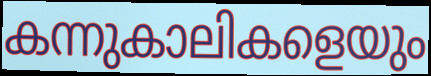
കന്നുകാലികളെയും